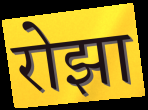
रोझा